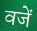
वजें